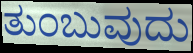
ತುಂಬುವುದು